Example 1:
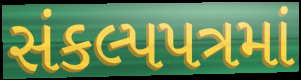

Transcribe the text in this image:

સંકલ્પપત્રમાં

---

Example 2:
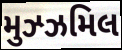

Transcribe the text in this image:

મુઝ્ઝમિલ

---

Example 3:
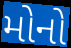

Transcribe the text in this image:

મોનો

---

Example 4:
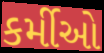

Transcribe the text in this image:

કર્મીઓ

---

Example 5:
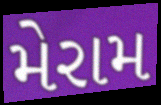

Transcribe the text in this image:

મેરામ